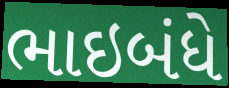
ભાઇબંધે